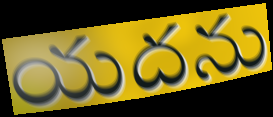
యదను